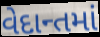
વેદાન્તમાં